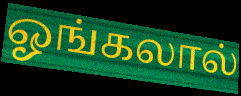
ஓங்கலால்